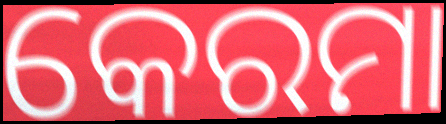
କେରମା